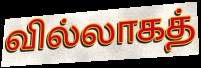
வில்லாகத்